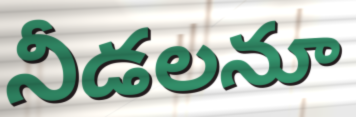
నీడలనూ